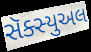
સૅક્સ્યુઅલ